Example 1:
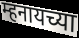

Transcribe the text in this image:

म्हनायच्या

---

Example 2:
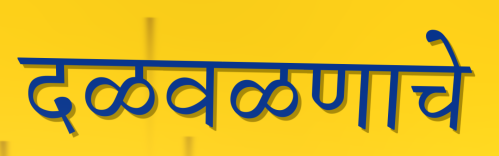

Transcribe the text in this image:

दळवळणाचे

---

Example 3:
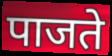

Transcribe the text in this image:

पाजते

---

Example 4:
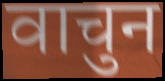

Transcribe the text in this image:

वाचुन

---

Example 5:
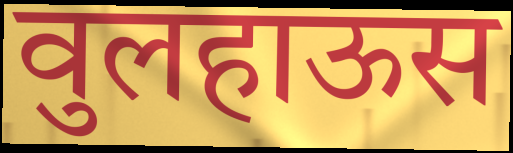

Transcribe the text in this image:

वुलहाऊस